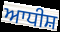
ਆਧੀਸ਼